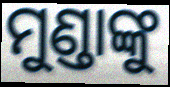
ମୁଣ୍ଡାଙ୍କୁ